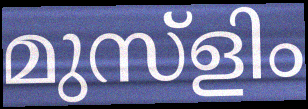
മുസ്ളിം